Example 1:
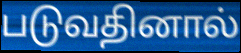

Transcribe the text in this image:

படுவதினால்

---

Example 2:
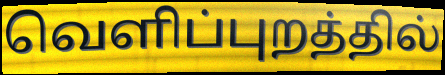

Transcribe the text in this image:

வெளிப்புறத்தில்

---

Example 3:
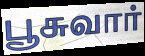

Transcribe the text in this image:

பூசுவார்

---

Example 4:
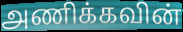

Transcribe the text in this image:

அணிக்கவின்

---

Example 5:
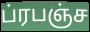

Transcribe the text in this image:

ப்ரபஞ்ச